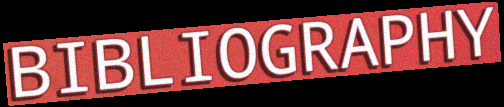
BIBLIOGRAPHY